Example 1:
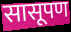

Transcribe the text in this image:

सासूपण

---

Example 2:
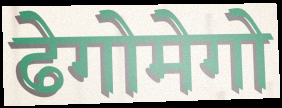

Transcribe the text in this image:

ढेगोमेगो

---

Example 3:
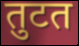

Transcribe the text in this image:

तुटत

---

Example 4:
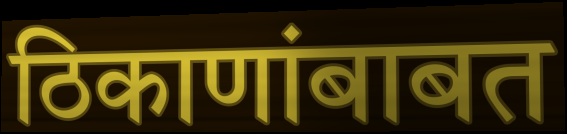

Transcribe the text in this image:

ठिकाणांबाबत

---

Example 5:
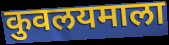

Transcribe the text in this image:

कुवलयमाला